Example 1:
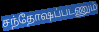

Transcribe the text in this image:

சந்தோஷப்படணும்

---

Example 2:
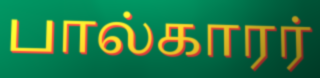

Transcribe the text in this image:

பால்காரர்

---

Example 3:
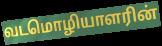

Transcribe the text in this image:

வடமொழியாளரின்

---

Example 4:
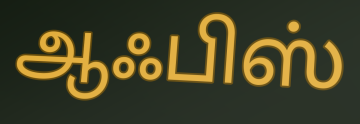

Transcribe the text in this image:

ஆஃபிஸ்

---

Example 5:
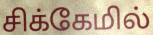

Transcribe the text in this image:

சிக்கேமில்